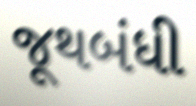
જૂથબંધી